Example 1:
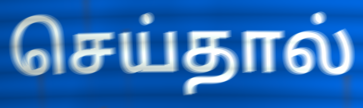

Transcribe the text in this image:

செய்தால்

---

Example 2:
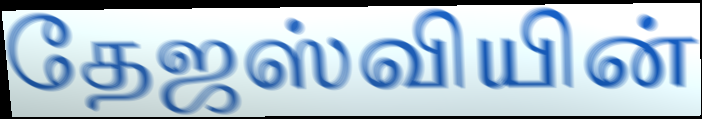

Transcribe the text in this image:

தேஜஸ்வியின்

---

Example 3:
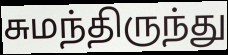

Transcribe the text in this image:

சுமந்திருந்து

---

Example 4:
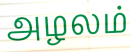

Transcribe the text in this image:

அழலம்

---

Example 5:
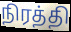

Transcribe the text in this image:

நிரத்தி